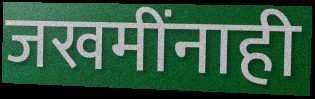
जखमींनाही